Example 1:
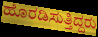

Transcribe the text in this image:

ಹೊರಡಿಸುತ್ತಿದ್ದರು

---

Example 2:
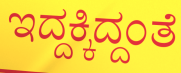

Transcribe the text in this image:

ಇದ್ದಕ್ಕಿದ್ದಂತೆ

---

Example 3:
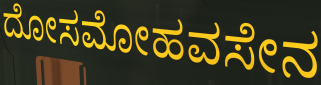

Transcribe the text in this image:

ದೋಸಮೋಹವಸೇನ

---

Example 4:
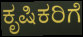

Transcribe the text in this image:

ಕೃಷಿಕರಿಗೆ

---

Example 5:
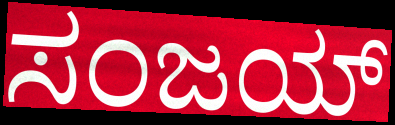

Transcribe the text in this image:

ಸಂಜಯ್